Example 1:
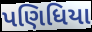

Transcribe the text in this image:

પણિધિયા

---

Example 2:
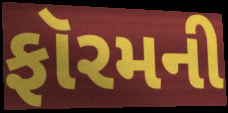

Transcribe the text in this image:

ફૉરમની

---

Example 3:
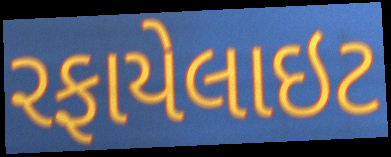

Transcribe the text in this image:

રફાયેલાઇટ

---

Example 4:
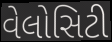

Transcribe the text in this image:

વેલોસિટી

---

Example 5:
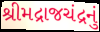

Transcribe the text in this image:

શ્રીમદ્રાજચંદ્રનું